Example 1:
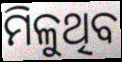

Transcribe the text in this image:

ମିଳୁଥିବ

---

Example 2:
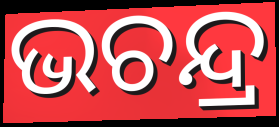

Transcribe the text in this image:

ଭଚନ୍ଦ୍ର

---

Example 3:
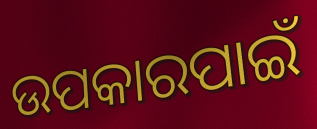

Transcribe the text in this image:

ଉପକାରପାଇଁ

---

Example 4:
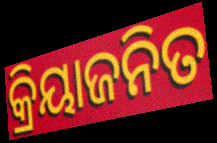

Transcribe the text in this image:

କ୍ରିୟାଜନିତ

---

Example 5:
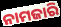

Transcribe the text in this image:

ନାମଜାରି